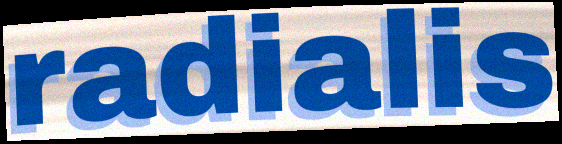
radialis